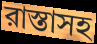
রাস্তাসহ